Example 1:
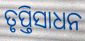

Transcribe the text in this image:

ତୃପ୍ତିସାଧନ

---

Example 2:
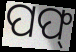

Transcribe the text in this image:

ପଫ୍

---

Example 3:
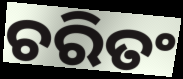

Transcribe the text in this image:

ଚରିତଂ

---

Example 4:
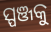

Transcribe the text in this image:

ସ୍ପଞ୍ଜକୁ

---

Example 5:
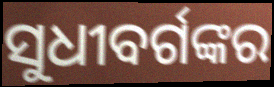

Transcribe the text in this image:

ସୁଧୀବର୍ଗଙ୍କର